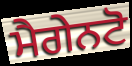
ਮੈਗੇਨਟੋ